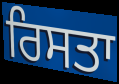
ਰਿਸਤਾ